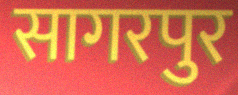
सागरपुर